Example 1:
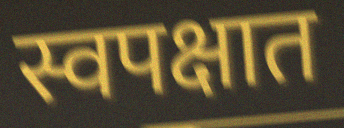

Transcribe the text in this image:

स्वपक्षात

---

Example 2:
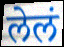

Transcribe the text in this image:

लेलं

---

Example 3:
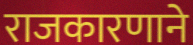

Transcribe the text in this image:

राजकारणाने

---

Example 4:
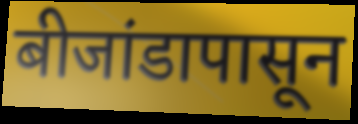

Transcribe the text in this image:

बीजांडापासून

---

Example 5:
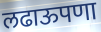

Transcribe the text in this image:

लढाऊपणा